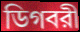
ডিগবরী